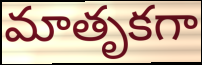
మాతృకగా